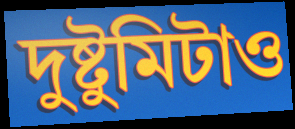
দুষ্টুমিটাও